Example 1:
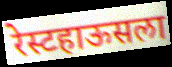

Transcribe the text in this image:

रेस्टहाऊसला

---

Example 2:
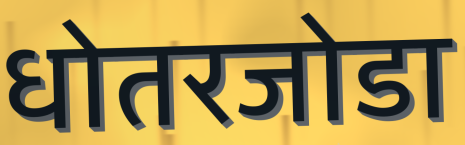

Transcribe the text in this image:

धोतरजोडा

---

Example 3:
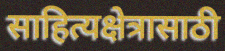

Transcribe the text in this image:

साहित्यक्षेत्रासाठी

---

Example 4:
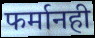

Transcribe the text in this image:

फर्मानही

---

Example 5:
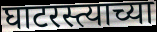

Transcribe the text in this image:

घाटरस्त्याच्या